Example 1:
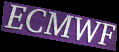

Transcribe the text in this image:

ECMWF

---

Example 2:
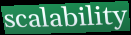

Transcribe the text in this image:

scalability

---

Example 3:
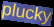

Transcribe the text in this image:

plucky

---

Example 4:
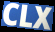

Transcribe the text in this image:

CLX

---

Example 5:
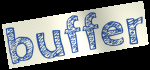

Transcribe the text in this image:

buffer